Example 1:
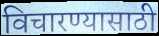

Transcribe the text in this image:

विचारण्यासाठी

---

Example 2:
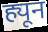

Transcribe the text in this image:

ह्यून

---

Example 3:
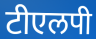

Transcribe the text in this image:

टीएलपी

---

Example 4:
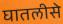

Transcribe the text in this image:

घातलीसे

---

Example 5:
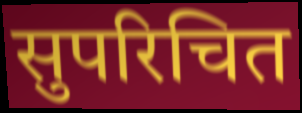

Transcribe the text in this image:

सुपरिचित